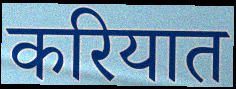
करियात